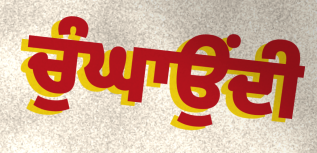
ਚੁੰਘਾਉਂਦੀ